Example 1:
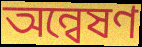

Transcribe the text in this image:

অন্বেষণ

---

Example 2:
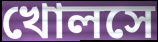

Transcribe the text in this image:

খোলসে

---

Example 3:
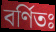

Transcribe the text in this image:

বর্ণিতঃ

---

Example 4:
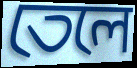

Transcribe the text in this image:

তেলে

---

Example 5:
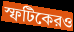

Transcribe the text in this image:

স্ফটিকেরও